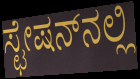
ಸ್ಟೇಷನ್‌ನಲ್ಲಿ